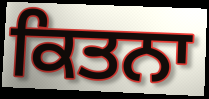
ਕਿਤਨਾ